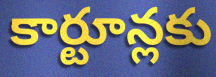
కార్టూన్లకు